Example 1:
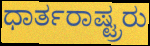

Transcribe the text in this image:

ಧಾರ್ತರಾಷ್ಟ್ರರು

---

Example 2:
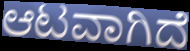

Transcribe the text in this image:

ಆಟವಾಗಿದೆ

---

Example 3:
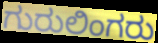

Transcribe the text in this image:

ಗುರುಲಿಂಗರು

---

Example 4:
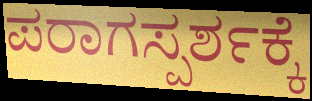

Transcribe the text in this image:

ಪರಾಗಸ್ಪರ್ಶಕ್ಕೆ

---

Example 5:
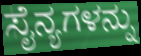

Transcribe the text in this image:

ಸೈನ್ಯಗಳನ್ನು